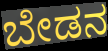
ಬೇಡನ